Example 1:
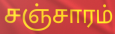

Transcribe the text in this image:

சஞ்சாரம்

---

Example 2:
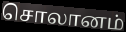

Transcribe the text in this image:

சொலானம்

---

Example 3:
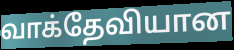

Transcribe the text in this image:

வாக்தேவியான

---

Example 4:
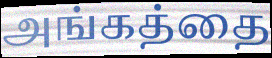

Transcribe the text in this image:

அங்கத்தை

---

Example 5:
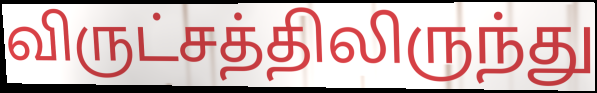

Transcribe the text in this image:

விருட்சத்திலிருந்து